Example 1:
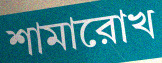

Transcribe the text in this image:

শামারোখ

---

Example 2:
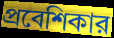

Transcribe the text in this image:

প্রবেশিকার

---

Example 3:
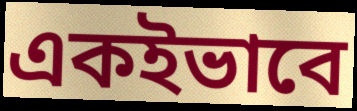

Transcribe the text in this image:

একইভাবে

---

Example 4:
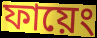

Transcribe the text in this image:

ফায়েং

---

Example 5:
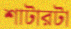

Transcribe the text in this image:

শাটারটা